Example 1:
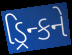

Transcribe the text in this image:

ડ્રિન્કને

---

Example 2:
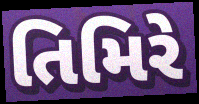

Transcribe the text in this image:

તિમિરે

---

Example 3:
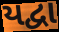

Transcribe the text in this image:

યદ્વા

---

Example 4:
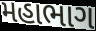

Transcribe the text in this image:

મહાભાગ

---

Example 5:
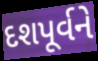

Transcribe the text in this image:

દશપૂર્વને